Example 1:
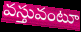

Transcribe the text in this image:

వస్తువంటూ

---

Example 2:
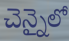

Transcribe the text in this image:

చెన్నైలో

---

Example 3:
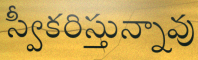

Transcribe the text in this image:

స్వీకరిస్తున్నావు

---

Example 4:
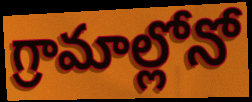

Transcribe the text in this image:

గ్రామాల్లోనో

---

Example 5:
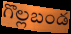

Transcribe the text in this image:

గొల్లబండ